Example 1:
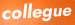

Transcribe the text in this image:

collegue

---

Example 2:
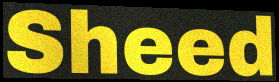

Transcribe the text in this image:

Sheed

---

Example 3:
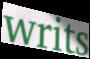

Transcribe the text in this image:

writs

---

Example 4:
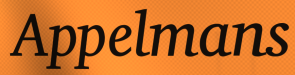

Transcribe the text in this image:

Appelmans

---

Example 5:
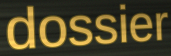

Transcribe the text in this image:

dossier